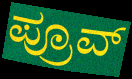
ಪ್ರೂವ್